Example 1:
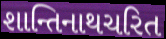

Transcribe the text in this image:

શાન્તિનાથચરિત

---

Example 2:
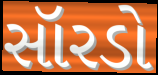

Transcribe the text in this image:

સૉરડો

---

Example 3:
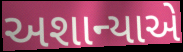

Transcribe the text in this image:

અશાન્યાએ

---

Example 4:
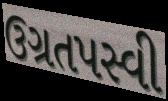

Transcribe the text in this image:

ઉગ્રતપસ્વી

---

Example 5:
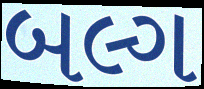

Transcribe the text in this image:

બલ્ગ